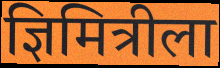
ज्ञिमित्रीला